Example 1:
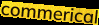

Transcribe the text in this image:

commerical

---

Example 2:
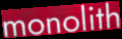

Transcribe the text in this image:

monolith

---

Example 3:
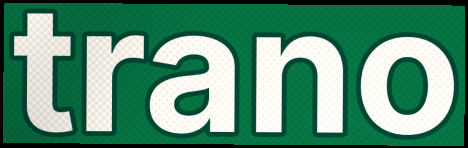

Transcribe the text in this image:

trano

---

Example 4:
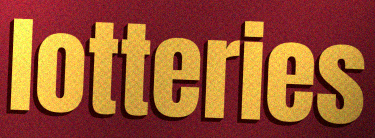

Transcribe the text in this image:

lotteries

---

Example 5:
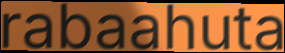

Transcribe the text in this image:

rabaahuta